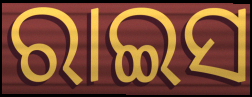
ରାଇସ